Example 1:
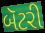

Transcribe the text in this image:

બૅટરી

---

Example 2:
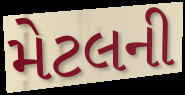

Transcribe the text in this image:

મેટલની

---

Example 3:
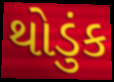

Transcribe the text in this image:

થોડુંક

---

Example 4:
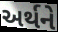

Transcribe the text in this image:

અર્થને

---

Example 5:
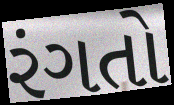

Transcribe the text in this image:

રંગતો